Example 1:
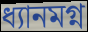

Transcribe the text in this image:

ধ্যানমগ্ন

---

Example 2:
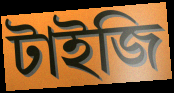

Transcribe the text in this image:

টাইজি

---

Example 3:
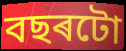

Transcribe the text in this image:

বছৰটো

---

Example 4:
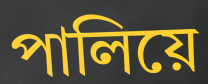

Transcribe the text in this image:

পালিয়ে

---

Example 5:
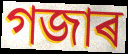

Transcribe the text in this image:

গজাৰ